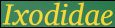
Ixodidae